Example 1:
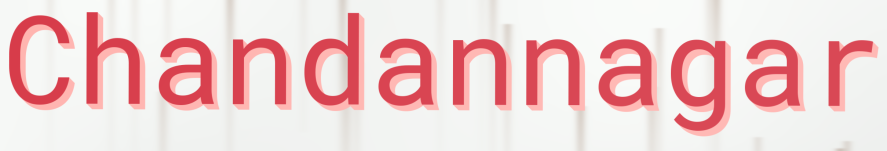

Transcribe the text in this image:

Chandannagar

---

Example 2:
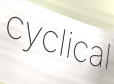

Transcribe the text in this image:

cyclical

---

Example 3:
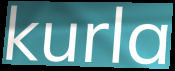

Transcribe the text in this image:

kurla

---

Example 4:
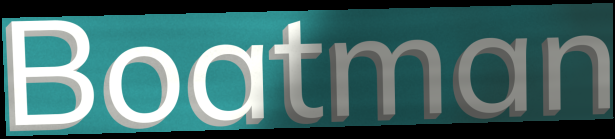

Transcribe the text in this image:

Boatman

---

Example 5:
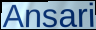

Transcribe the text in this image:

Ansari